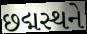
છદ્મસ્થને